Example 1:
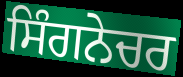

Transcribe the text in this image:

ਸਿੰਗਨੇਚਰ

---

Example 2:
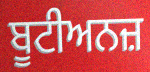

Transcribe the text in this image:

ਬੂਟੀਅਨਜ਼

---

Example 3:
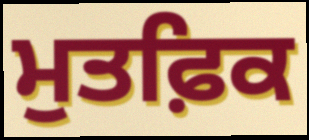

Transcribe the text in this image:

ਮੁਤਫ਼ਿਕ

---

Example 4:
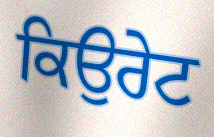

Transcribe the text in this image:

ਕਿਉਰੇਟ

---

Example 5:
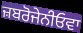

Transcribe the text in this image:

ਜ਼ਬਰੋਜੇਨੀਓਵਾ